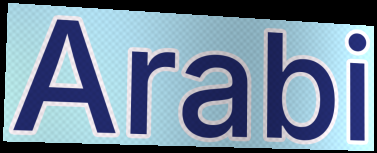
Arabi